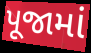
પૂજામાં